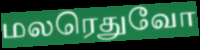
மலரெதுவோ